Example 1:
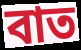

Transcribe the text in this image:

বাত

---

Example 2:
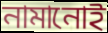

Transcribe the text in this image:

নামানোই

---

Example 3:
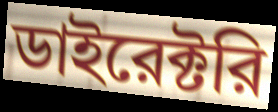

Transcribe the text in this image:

ডাইরেক্টরি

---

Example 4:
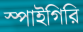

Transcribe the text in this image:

স্পাইগিরি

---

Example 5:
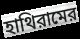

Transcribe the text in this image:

হাথিরামের